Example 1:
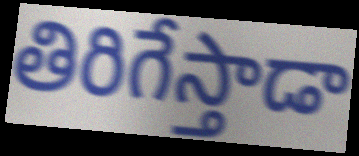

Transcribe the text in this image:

తిరిగేస్తాడా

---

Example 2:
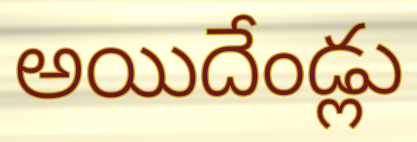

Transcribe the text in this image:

అయిదేండ్లు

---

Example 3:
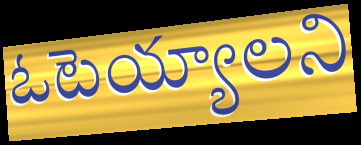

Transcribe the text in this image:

ఓటెయ్యాలని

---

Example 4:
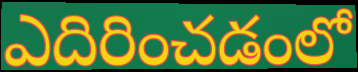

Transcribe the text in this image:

ఎదిరించడంలో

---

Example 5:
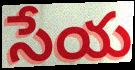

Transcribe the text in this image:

సేయ